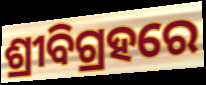
ଶ୍ରୀବିଗ୍ରହରେ